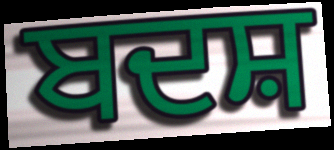
ਬਦਸ਼